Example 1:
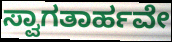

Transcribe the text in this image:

ಸ್ವಾಗತಾರ್ಹವೇ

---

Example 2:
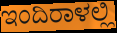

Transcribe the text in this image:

ಇಂದಿರಾಳಲ್ಲಿ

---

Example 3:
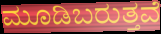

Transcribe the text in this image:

ಮೂಡಿಬರುತ್ತವೆ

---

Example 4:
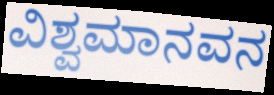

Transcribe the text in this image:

ವಿಶ್ವಮಾನವನ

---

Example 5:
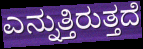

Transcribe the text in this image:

ಎನ್ನುತ್ತಿರುತ್ತದೆ